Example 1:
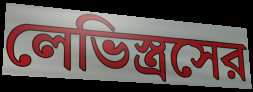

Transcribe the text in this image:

লেভিস্ত্রসের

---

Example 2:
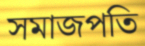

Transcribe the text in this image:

সমাজপতি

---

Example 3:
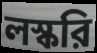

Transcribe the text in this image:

লস্করি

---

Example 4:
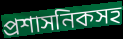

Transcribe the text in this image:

প্রশাসনিকসহ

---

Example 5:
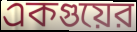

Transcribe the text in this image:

একগুয়ের